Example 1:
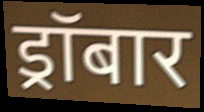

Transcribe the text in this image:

ड्रॉबार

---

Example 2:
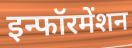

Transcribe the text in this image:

इन्फॉरमेंशन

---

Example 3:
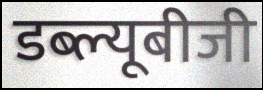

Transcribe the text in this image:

डब्ल्यूबीजी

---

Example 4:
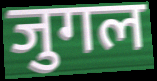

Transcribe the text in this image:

जुगल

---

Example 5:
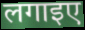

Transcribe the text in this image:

लगाइए